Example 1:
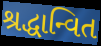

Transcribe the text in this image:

શ્રદ્ધાન્વિત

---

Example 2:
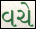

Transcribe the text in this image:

વચે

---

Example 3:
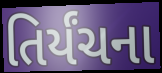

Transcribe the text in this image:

તિર્યંચના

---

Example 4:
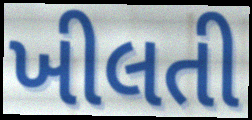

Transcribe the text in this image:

ખીલતી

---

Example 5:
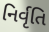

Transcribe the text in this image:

નિર્વૃતિ